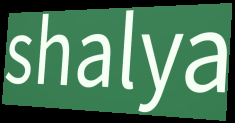
shalya